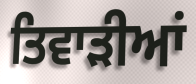
ਤਿਵਾੜੀਆਂ